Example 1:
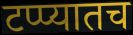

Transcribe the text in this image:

टप्प्यातच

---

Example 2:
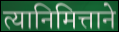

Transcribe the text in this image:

त्यानिमित्ताने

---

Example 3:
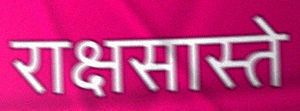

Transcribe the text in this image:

राक्षसास्ते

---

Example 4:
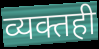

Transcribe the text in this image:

व्यक्तही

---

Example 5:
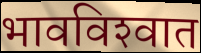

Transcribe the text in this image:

भावविश्वात